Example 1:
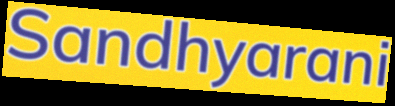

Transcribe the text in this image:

Sandhyarani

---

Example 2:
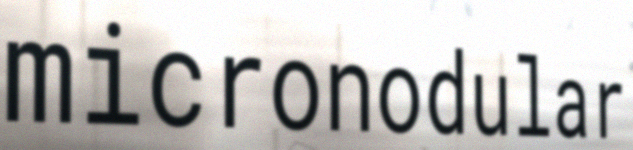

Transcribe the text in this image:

micronodular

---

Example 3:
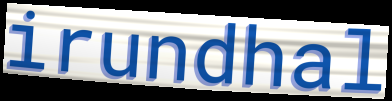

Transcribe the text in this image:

irundhal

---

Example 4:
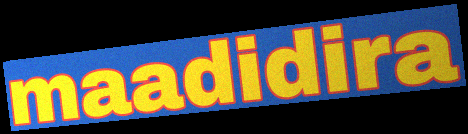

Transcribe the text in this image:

maadidira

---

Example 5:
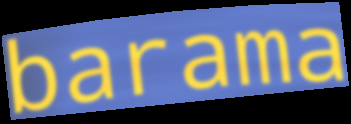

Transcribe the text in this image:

barama